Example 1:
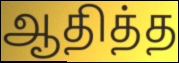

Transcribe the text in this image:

ஆதித்த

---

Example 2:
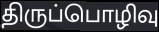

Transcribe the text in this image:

திருப்பொழிவு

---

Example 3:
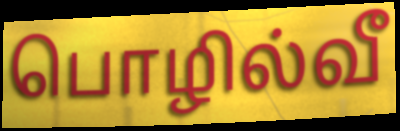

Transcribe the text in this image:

பொழில்வீ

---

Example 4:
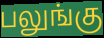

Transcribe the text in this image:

பலுங்கு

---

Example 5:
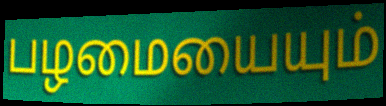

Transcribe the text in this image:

பழமையையும்